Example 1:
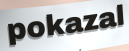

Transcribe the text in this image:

pokazal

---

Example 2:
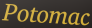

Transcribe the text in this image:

Potomac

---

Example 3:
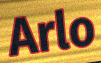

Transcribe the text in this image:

Arlo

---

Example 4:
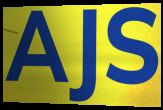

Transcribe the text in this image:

AJS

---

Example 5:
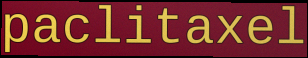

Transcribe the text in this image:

paclitaxel